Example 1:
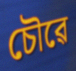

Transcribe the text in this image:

চৌৱে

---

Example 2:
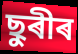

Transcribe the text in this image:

ছুৰীৰ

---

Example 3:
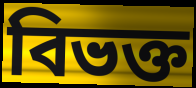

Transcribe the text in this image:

বিভক্ত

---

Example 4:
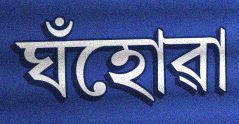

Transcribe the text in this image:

ঘঁহোৱা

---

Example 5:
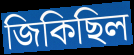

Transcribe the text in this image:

জিকিছিল